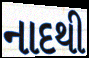
નાદથી